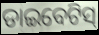
ଡାଇବେଟିସ୍